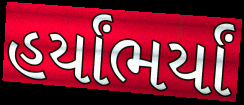
હર્યાંભર્યાં